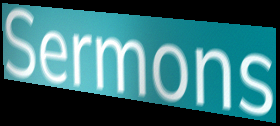
Sermons